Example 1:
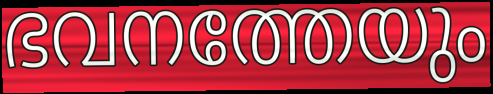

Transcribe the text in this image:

ഭവനത്തേയും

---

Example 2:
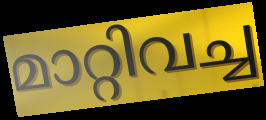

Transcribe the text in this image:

മാറ്റിവച്ച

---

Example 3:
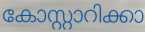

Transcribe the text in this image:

കോസ്റ്റാറിക്കാ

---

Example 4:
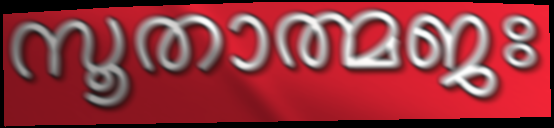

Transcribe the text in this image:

സൂതാത്മജഃ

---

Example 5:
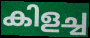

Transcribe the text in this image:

കിളച്ച